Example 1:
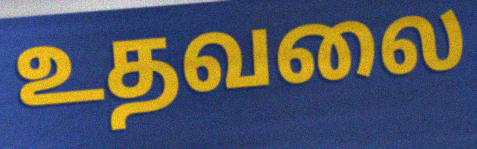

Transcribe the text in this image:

உதவலை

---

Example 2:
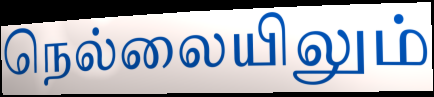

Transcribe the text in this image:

நெல்லையிலும்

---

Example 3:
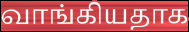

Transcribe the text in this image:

வாங்கியதாக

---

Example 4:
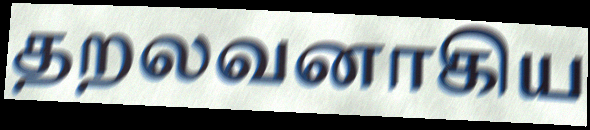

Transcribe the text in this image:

தறலவனாகிய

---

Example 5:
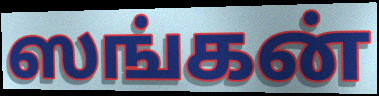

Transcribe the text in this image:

ஸங்கன்